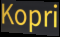
Kopri